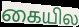
கையில